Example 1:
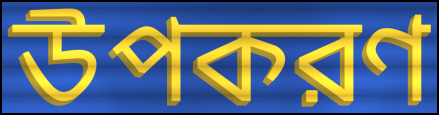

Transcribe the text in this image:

উপকরণ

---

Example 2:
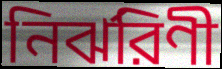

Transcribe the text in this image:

নির্ঝরিণী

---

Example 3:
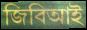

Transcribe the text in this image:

জিবিআই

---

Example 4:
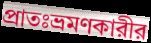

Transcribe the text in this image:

প্রাতঃভ্রমণকারীর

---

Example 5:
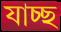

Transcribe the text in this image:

যাচ্ছ